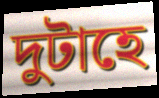
দুটাহে